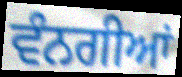
ਵੰਨਗੀਆਂ